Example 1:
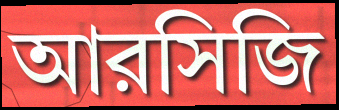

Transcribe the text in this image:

আরসিজি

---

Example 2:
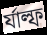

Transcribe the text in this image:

র্যাল্ফ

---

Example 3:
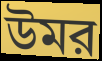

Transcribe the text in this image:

উমর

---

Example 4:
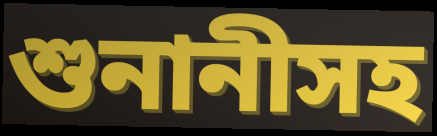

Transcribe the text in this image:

শুনানীসহ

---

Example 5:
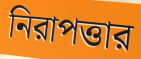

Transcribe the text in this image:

নিরাপত্তার